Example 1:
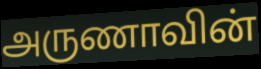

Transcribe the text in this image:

அருணாவின்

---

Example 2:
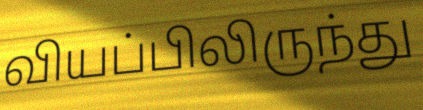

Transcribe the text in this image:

வியப்பிலிருந்து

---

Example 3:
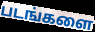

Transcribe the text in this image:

படங்களை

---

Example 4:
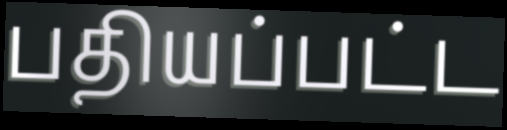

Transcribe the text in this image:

பதியப்பட்ட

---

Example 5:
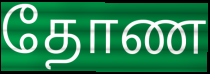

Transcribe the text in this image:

தோண